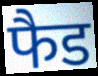
फैड